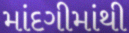
માંદગીમાંથી